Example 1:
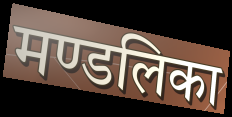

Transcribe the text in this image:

मण्डलिका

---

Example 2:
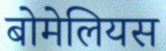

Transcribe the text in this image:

बोमेलियस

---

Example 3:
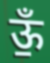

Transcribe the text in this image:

ऊँ॒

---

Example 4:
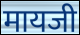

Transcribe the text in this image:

मायजी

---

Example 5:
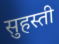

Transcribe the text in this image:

सुहस्ती